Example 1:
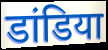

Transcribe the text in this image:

डांडिया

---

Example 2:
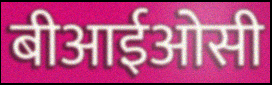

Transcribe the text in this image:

बीआईओसी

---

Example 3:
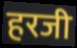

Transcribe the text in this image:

हरजी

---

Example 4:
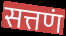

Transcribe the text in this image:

सत्तणं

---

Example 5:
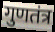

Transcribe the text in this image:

गुणतंत्र